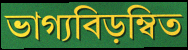
ভাগ্যবিড়ম্বিত